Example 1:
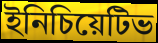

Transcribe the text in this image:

ইনিচিয়েটিভ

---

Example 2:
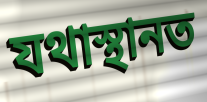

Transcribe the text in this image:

যথাস্থানত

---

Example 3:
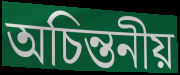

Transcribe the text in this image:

অচিন্তনীয়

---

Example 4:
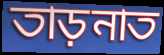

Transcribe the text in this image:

তাড়নাত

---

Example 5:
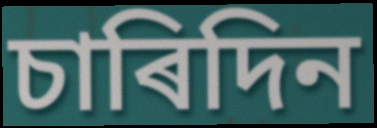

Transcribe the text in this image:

চাৰিদিন